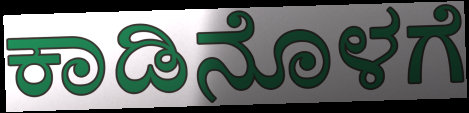
ಕಾಡಿನೊಳಗೆ